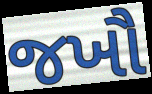
જખૌ